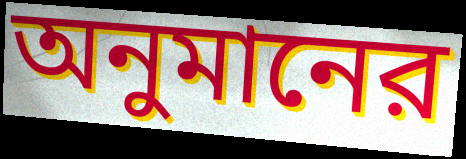
অনুমানের